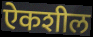
ऐकशील